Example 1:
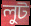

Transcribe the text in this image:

লুট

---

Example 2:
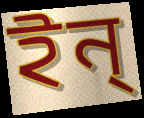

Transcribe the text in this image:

ইন্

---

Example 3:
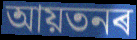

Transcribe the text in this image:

আয়তনৰ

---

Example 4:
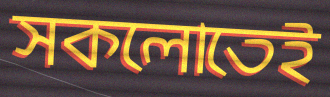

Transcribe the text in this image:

সকলোতেই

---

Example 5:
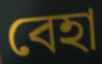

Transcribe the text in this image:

বেহা